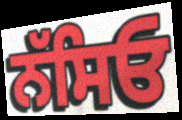
ਨੱਸਿਓ